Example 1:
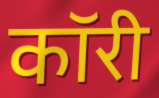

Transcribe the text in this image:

कॉरी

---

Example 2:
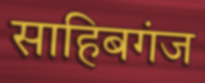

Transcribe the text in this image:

साहिबगंज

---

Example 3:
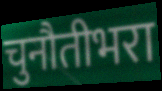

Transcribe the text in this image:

चुनौतीभरा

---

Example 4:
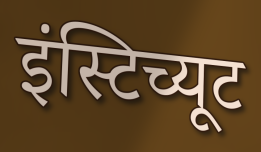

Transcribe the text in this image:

इंस्टिच्यूट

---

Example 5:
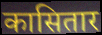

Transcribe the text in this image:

कासितार